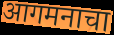
आगमनाचा